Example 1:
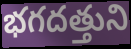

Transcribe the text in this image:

భగదత్తుని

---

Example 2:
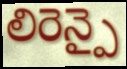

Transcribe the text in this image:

లిరెన్పై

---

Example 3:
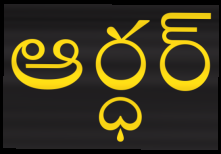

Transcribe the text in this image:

ఆర్ధర్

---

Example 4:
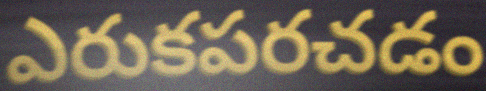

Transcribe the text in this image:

ఎరుకపరచడం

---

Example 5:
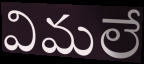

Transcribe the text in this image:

విమలే